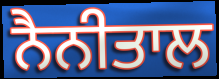
ਨੈਨੀਤਾਲ